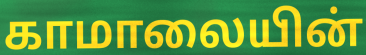
காமாலையின்